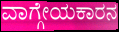
ವಾಗ್ಗೇಯಕಾರನ